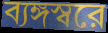
ব্যঙ্গস্বরে